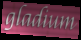
gladium